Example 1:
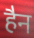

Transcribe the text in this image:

हैन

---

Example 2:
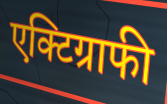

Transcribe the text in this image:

एक्टिग्राफी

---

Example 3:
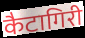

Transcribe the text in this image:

कैटागिरी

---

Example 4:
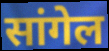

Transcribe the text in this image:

सांगेल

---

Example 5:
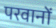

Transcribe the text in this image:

परवानों